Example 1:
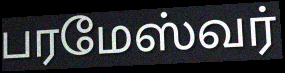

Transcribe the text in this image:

பரமேஸ்வர்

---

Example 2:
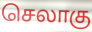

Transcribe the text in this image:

செலாகு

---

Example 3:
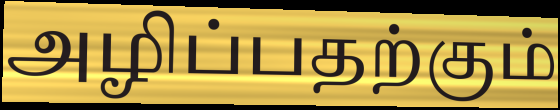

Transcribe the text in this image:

அழிப்பதற்கும்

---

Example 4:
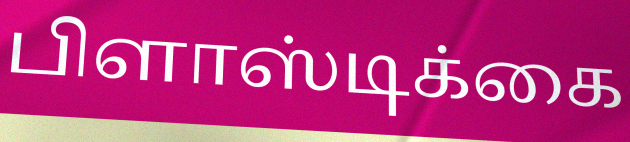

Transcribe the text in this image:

பிளாஸ்டிக்கை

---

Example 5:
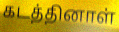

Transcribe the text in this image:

கடத்தினாள்